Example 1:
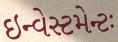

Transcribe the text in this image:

ઇન્વેસ્ટમેન્ટઃ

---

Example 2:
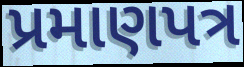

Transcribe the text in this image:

પ્રમાણપત્ર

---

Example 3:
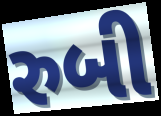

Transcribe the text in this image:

રુબી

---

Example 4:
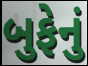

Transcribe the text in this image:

બુફેનું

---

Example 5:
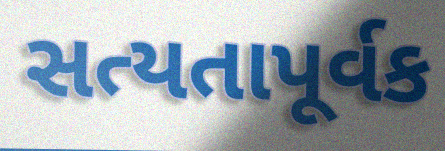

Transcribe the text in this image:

સત્યતાપૂર્વક